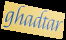
ghadtar